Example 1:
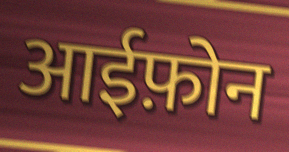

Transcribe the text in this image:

आईफ़ोन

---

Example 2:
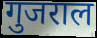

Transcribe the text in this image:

गुजराल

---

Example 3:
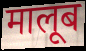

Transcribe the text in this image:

मालूब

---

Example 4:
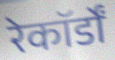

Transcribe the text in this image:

रेकॉर्डों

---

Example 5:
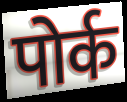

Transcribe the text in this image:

पोर्क